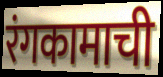
रंगकामाची